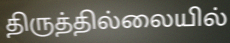
திருத்தில்லையில்